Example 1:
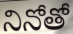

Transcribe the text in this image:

నినోతో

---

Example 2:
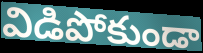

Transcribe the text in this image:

విడిపోకుండా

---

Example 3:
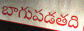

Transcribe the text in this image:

బాగుపడతది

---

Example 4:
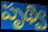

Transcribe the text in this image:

పృథ్వి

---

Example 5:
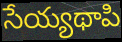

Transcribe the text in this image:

సేయ్యథాపి